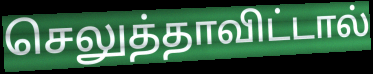
செலுத்தாவிட்டால்